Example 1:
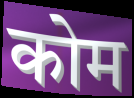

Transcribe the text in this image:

कोम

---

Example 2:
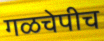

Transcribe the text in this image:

गळचेपीच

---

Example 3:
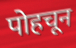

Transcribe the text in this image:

पोहचून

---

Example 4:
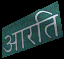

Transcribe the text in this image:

आरति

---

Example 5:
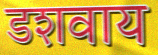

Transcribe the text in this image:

डशवाय